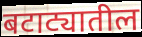
बटाट्यातील